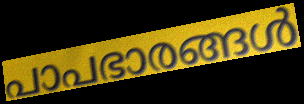
പാപഭാരങ്ങൾ